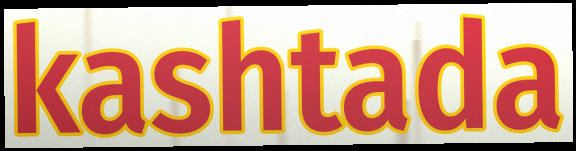
kashtada